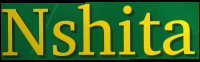
Nshita